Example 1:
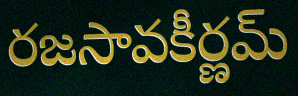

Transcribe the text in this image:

రజసావకీర్ణమ్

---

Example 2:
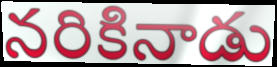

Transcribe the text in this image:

నరికినాడు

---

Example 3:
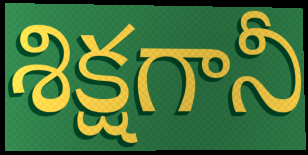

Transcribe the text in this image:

శిక్షగానీ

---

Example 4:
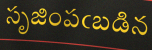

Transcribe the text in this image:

సృజింపఁబడిన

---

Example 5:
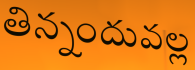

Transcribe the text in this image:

తిన్నందువల్ల